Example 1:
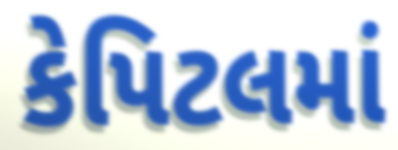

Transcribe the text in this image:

કેપિટલમાં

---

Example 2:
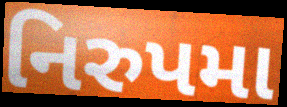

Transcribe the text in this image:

નિરુપમા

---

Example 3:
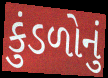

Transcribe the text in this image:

કુંડળોનું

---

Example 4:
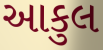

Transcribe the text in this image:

આકુલ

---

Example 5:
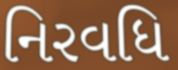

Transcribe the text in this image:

નિરવધિ